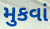
મુકવાં